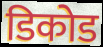
डिकोड